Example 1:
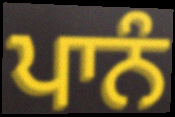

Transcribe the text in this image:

ਪਾਨੰ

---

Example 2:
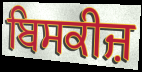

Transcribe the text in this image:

ਬਿਸਕੀਜ਼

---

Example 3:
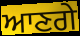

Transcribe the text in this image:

ਆਣਗੇ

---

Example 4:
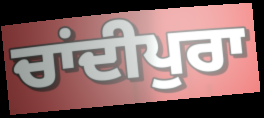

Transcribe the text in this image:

ਚਾਂਦੀਪੁਰਾ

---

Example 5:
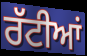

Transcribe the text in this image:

ਰੱਟੀਆਂ